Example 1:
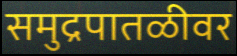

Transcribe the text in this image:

समुद्रपातळीवर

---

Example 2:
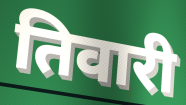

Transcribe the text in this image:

तिवारी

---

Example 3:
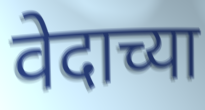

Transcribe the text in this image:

वेदाच्या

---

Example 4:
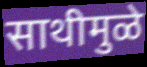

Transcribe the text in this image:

साथीमुळे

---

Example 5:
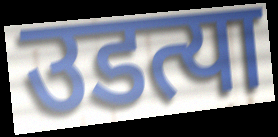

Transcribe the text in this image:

उडत्या